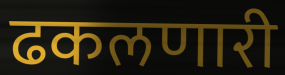
ढकलणारी